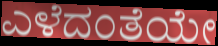
ಎಳೆದಂತೆಯೇ